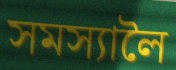
সমস্যালৈ